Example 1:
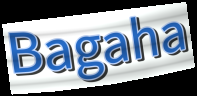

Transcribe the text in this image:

Bagaha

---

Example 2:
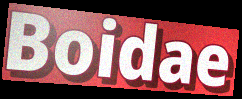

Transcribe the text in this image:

Boidae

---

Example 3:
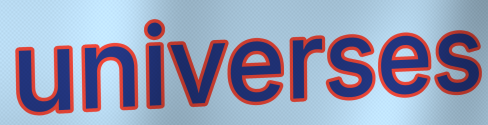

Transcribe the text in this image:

universes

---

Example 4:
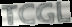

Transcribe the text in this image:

TCGL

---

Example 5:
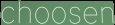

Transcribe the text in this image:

choosen